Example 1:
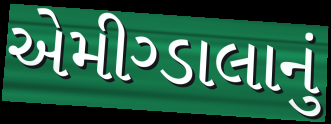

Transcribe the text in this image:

એમીગ્ડાલાનું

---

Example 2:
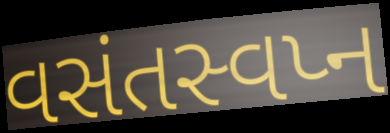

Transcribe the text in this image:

વસંતસ્વપ્ન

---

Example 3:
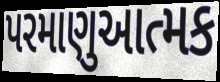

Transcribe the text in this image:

પરમાણુઆત્મક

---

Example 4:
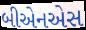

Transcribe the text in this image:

બીએનએસ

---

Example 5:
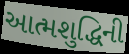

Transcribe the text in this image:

આત્મશુદ્ધિની